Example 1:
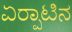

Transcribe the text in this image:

ಏರ‍್ಪಾಟಿನ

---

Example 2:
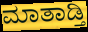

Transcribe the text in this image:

ಮಾತಾಡ್ತಿ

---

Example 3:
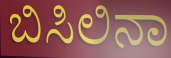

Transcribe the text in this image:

ಬಿಸಿಲಿನಾ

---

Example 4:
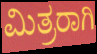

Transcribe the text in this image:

ಮಿತ್ರರಾಗಿ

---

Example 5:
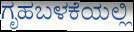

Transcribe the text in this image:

ಗೃಹಬಳಕೆಯಲ್ಲಿ